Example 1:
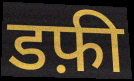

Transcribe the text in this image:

डफ़ी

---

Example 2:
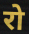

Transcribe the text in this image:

रो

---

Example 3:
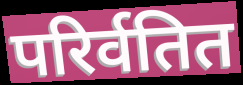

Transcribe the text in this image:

परिर्वतित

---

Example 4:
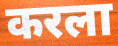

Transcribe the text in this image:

करला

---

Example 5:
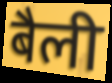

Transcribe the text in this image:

बैली